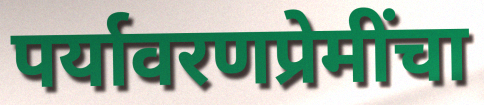
पर्यावरणप्रेमींचा